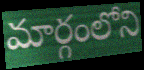
మార్గంలోని